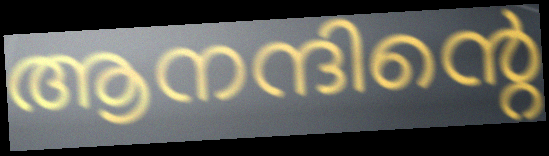
ആനന്ദിന്റെ